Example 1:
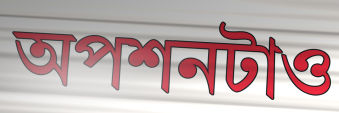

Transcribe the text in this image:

অপশনটাও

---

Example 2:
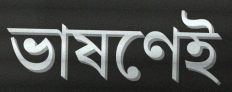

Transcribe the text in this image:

ভাষণেই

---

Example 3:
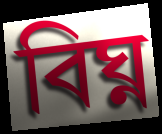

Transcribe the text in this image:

বিঘ্ন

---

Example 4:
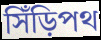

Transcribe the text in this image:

সিঁড়িপথ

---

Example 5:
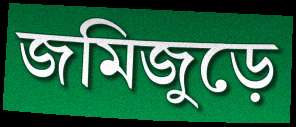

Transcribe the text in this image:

জমিজুড়ে